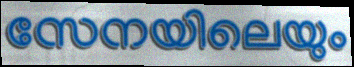
സേനയിലെയും